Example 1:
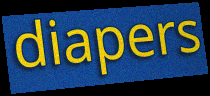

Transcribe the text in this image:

diapers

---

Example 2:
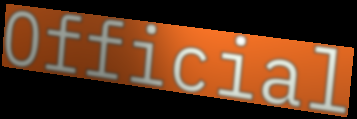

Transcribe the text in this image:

Official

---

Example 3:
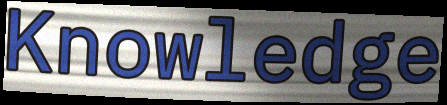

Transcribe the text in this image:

Knowledge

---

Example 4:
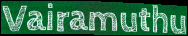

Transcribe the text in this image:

Vairamuthu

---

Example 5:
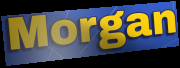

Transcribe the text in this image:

Morgan